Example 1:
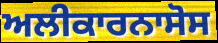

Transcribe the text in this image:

ਅਲੀਕਾਰਨਾਸੋਸ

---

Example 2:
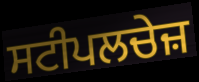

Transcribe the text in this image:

ਸਟੀਪਲਚੇਜ਼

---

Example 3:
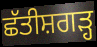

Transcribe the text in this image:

ਛੱਤੀਸ਼ਗੜ੍ਹ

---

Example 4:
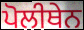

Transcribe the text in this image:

ਪੋਲੀਥੇਨ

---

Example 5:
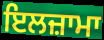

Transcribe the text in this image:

ਇਲਜ਼ਾਮਾ